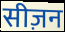
सीज़न